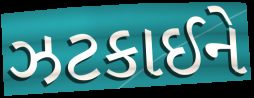
ઝટકાઈને